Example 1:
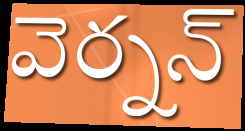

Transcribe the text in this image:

వెర్నన్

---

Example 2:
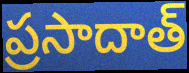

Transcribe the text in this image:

ప్రసాదాత్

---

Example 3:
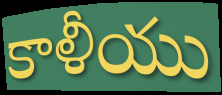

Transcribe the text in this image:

కాళీయు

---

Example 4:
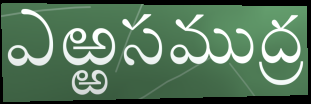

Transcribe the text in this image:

ఎఱ్ఱసముద్ర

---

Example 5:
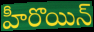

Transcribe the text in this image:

హీరొయిన్